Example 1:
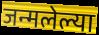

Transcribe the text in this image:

जन्मलेल्या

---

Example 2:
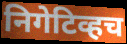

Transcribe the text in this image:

निगेटिव्हच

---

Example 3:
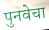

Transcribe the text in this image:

पुनवेचा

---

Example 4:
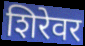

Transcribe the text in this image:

शिरेवर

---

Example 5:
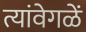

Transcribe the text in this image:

त्यांवेगळें